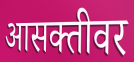
आसक्तीवर